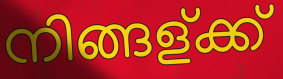
നിങ്ങള്ക്ക്